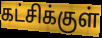
கட்சிக்குள்